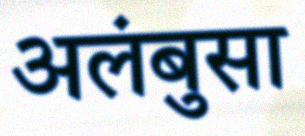
अलंबुसा